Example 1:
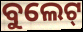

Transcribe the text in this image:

ବୁଲେଟ୍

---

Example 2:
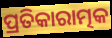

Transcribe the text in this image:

ପ୍ରତିକାରାତ୍ମକ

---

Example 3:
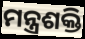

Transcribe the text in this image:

ମନ୍ତ୍ରଶକ୍ତି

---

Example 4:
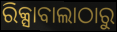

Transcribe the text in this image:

ରିକ୍ସାବାଲାଠାରୁ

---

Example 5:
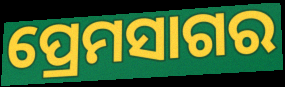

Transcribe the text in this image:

ପ୍ରେମସାଗର